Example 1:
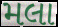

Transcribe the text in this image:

મલા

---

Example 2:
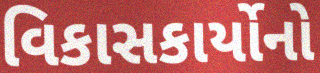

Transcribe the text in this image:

વિકાસકાર્યોનો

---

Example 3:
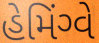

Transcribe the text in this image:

હેમિંગ્વે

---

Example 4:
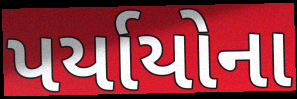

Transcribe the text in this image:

પર્યાયોના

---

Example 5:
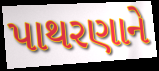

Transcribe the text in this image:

પાથરણાને